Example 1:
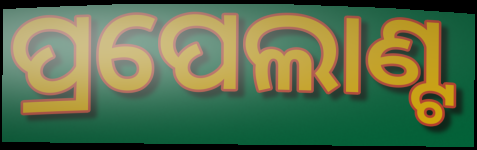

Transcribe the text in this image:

ପ୍ରପେଲାଣ୍ଟ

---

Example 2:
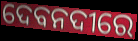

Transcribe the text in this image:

ଦେବନଦୀରେ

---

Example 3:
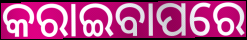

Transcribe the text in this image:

କରାଇବାପରେ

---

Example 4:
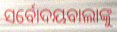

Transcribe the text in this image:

ସର୍ବୋଦୟବାଲାଙ୍କୁ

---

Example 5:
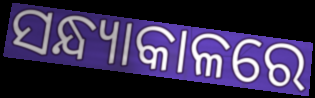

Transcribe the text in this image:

ସନ୍ଧ୍ୟାକାଳରେ